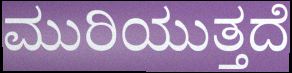
ಮುರಿಯುತ್ತದೆ